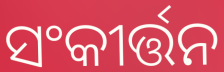
ସଂକୀର୍ତ୍ତନ